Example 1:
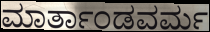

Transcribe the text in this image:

ಮಾರ್ತಾಂಡವರ್ಮ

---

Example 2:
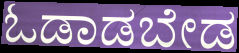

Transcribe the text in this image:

ಓಡಾಡಬೇಡ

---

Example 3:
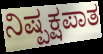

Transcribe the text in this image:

ನಿಷ್ಪಕ್ಷಪಾತ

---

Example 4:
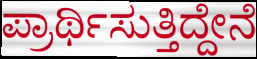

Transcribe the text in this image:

ಪ್ರಾರ್ಥಿಸುತ್ತಿದ್ದೇನೆ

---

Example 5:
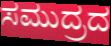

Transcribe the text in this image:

ಸಮುದ್ರದ